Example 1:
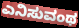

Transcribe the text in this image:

ಎನಿಸುವಂಥ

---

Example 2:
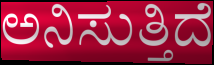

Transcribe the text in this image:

ಅನಿಸುತ್ತಿದೆ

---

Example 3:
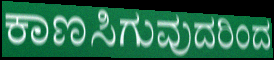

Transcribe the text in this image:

ಕಾಣಸಿಗುವುದರಿಂದ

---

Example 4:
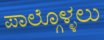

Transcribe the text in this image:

ಪಾಲ್ಗೊಳ್ಳಲು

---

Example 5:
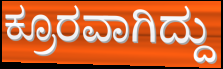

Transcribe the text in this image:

ಕ್ರೂರವಾಗಿದ್ದು